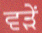
ਵੜੇਂ